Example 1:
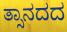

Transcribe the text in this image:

ತ್ಸಾನದದ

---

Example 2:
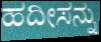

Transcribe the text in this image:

ಹದೀಸನ್ನು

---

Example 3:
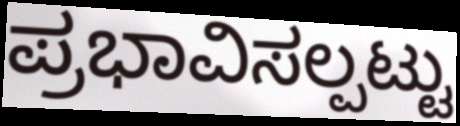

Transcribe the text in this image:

ಪ್ರಭಾವಿಸಲ್ಪಟ್ಟು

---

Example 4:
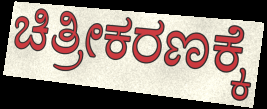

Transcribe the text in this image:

ಚಿತ್ರೀಕರಣಕ್ಕೆ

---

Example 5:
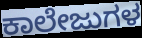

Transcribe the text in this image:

ಕಾಲೇಜುಗಳ